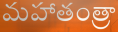
మహాతంత్రా